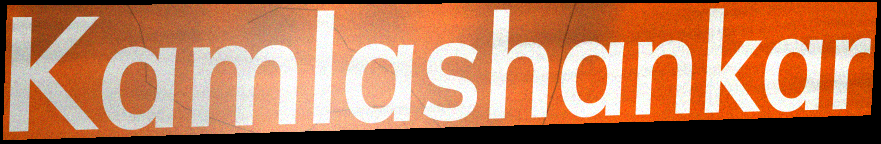
Kamlashankar